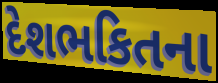
દેશભકિતના